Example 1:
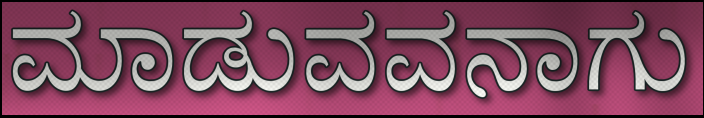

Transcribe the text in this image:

ಮಾಡುವವನಾಗು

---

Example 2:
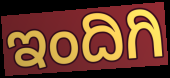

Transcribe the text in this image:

ಇಂದಿಗಿ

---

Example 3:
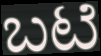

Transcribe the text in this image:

ಬಟೆ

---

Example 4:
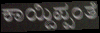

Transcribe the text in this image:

ಕಾಯ್ದಿಪ್ಪಂತೆ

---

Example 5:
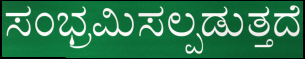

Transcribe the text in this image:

ಸಂಭ್ರಮಿಸಲ್ಪಡುತ್ತದೆ